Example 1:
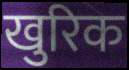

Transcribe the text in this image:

खुरिक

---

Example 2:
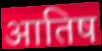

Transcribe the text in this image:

आतिष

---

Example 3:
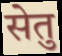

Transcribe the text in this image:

सेतु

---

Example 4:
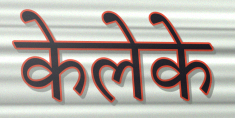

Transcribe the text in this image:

केलेके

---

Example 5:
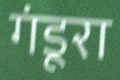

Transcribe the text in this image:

गंडूरा